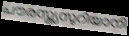
പൗരസ്ത്യസുറിയാനി